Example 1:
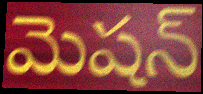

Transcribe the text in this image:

మెషన్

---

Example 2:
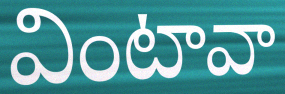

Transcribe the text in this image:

వింటావా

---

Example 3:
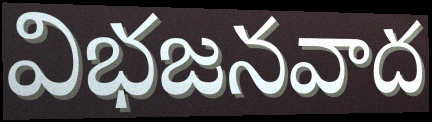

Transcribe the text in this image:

విభజనవాద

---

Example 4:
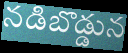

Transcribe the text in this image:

నడిబొడ్డున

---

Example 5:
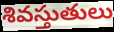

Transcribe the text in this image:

శివస్తుతులు